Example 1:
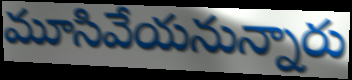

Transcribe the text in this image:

మూసివేయనున్నారు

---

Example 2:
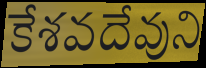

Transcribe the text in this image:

కేశవదేవుని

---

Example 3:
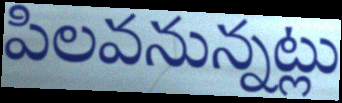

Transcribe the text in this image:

పిలవనున్నట్లు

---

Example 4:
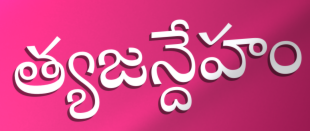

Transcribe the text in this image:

త్యజన్దేహం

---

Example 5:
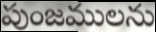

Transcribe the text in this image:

పుంజములను